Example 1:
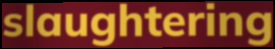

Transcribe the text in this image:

slaughtering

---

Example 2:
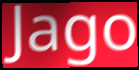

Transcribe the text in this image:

Jago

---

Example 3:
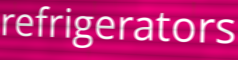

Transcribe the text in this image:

refrigerators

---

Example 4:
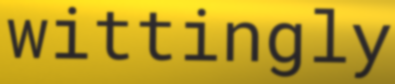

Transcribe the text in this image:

wittingly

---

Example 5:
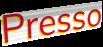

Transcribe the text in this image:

Presso